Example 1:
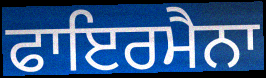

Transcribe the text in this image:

ਫਾਇਰਮੈਨਾ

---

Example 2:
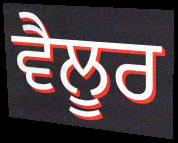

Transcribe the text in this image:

ਵੈਲੂਰ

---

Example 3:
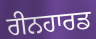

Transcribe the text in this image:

ਰੀਨਹਾਰਡ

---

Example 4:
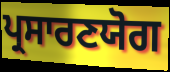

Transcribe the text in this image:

ਪ੍ਰਸਾਰਣਯੋਗ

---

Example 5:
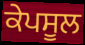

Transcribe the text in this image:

ਕੇਪਸੂਲ